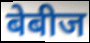
बेबीज